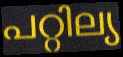
പറ്റില്യ